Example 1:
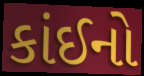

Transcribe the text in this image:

કાંઈનો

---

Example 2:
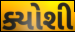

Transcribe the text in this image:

ક્યોશી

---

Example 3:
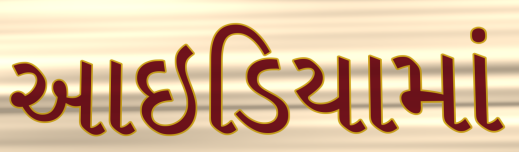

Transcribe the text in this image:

આઇડિયામાં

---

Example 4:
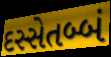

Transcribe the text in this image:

દસ્સેતબ્બં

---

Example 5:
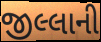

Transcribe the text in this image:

જીલ્લાની